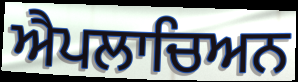
ਐਪਲਾਚਿਅਨ